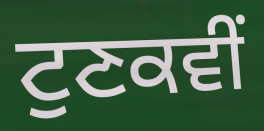
ਟੁਣਕਵੀਂ